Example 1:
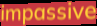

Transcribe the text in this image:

impassive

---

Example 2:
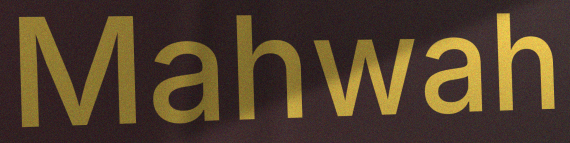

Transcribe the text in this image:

Mahwah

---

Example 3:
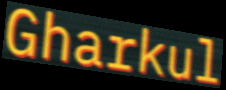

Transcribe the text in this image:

Gharkul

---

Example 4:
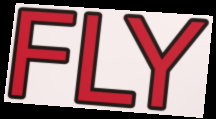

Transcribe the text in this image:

FLY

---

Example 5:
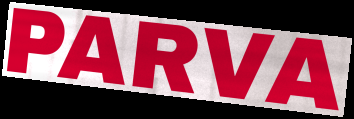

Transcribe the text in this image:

PARVA